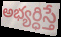
అభ్యర్ధిస్తే